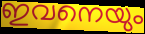
ഇവനെയും